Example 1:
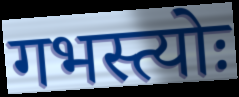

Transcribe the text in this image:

गभस्त्योः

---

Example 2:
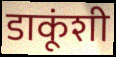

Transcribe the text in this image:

डाकूंशी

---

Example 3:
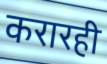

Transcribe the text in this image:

करारही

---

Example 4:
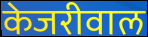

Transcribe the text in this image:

केजरीवाल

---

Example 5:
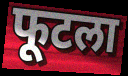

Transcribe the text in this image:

फूटला